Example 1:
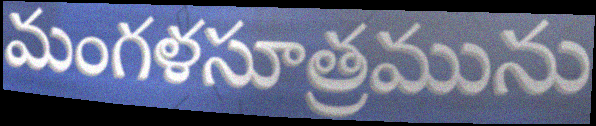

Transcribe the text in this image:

మంగళసూత్రమును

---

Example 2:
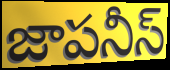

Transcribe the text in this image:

జాపనీస్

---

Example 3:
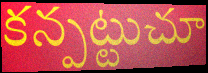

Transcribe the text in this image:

కన్పట్టుచూ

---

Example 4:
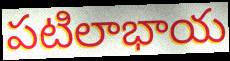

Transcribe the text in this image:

పటిలాభాయ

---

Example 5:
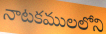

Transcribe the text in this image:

నాటకములలోని